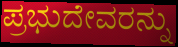
ಪ್ರಭುದೇವರನ್ನು